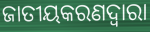
ଜାତୀୟକରଣଦ୍ୱାରା